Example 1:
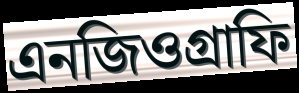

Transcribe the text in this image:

এনজিওগ্রাফি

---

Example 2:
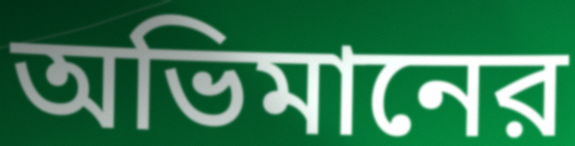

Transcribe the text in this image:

অভিমানের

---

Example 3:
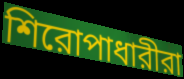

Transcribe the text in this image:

শিরোপাধারীরা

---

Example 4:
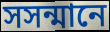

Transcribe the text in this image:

সসন্মানে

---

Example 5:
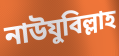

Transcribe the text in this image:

নাউযুবিল্লাহ